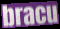
bracu